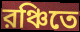
রঞ্চিতে